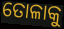
ତୋଳାକୁ